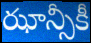
ఝాన్సీకీ